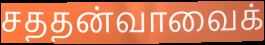
சததன்வாவைக்